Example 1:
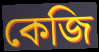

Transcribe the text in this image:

কেজি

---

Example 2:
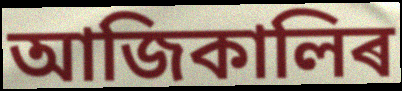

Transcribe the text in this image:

আজিকালিৰ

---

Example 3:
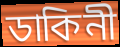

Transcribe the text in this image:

ডাকিনী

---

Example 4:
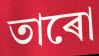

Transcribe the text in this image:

তাৰো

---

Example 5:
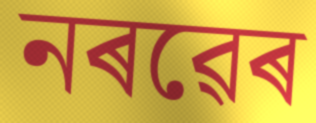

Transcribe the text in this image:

নৰৱেৰ